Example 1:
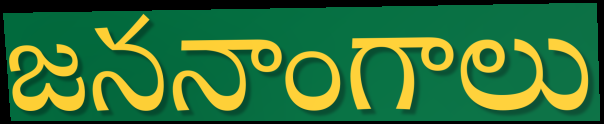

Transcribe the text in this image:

జననాంగాలు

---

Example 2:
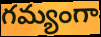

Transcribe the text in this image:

గమ్యంగా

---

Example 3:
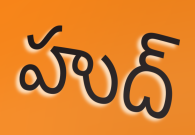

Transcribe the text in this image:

హుద్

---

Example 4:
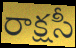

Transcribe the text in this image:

రాక్షసీ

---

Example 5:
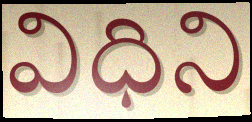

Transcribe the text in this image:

విధిని